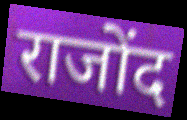
राजोंद